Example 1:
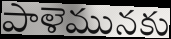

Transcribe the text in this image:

పాళెమునకు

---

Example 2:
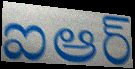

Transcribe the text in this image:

ఐఆర్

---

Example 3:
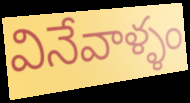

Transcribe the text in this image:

వినేవాళ్ళం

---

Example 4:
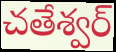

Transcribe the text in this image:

చతేశ్వర్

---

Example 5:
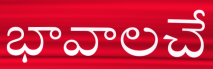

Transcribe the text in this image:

భావాలచే